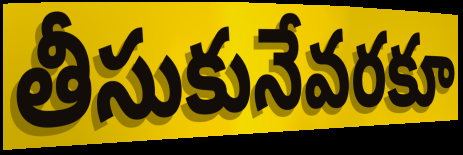
తీసుకునేవరకూ